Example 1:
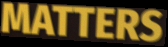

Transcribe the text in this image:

MATTERS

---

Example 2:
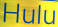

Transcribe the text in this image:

Hulu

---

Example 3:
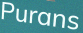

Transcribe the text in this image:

Purans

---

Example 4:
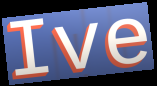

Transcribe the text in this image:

Ive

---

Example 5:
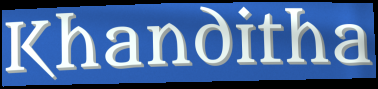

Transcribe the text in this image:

Khanditha